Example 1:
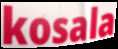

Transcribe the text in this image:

kosala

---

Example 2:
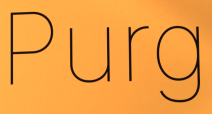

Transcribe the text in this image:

Purg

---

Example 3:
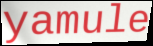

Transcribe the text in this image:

yamule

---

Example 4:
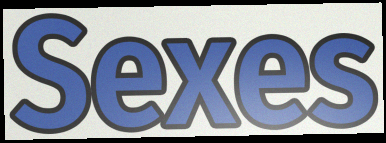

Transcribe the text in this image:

Sexes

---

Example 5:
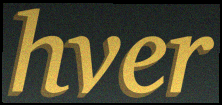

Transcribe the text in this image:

hver